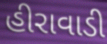
હીરાવાડી